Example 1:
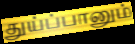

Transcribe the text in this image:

துய்ப்பானும்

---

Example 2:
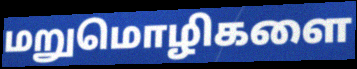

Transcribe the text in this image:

மறுமொழிகளை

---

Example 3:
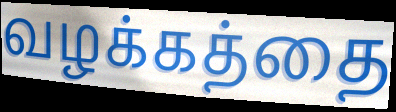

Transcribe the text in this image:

வழக்கத்தை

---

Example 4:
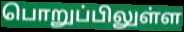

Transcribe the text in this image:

பொறுப்பிலுள்ள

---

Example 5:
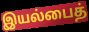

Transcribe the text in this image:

இயல்பைத்